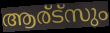
ആര്ട്സും